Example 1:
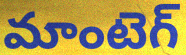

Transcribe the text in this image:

మాంటెగ్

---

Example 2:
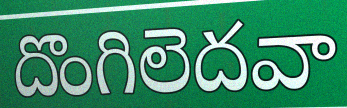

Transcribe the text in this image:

దొంగిలెదవా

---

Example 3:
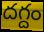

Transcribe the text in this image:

దగ్దం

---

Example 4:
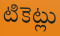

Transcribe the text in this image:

టికెట్లు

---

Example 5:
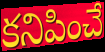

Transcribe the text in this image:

కనిపించే